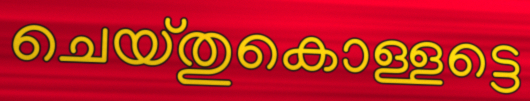
ചെയ്തുകൊള്ളട്ടെ